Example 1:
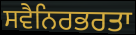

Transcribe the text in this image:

ਸਵੈਨਿਰਭਰਤਾ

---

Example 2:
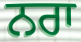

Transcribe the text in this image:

ਨਰਾ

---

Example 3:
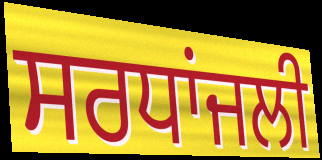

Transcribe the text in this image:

ਸਰਧਾਂਜਲੀ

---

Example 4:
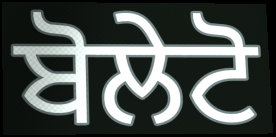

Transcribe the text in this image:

ਬੋਲੇਟੋ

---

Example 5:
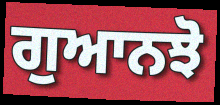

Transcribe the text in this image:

ਗੁਆਨਝੋ